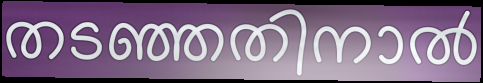
തടഞ്ഞതിനാൽ